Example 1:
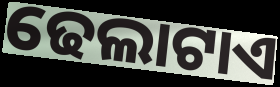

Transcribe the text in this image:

ଢେଲାଟାଏ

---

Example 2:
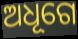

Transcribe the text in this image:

ଅଧୂଗେ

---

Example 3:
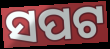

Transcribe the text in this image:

ସପଟ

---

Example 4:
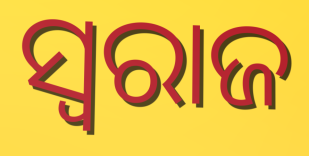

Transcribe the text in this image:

ସ୍ବରାଜ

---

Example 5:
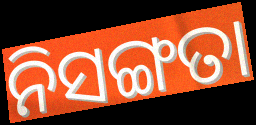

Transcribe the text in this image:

ନିସଙ୍ଗତା